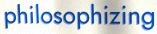
philosophizing